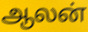
ஆலன்